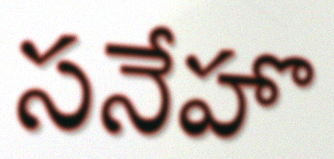
సనేహొ